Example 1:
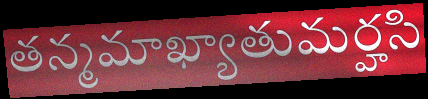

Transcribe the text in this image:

తన్మమాఖ్యాతుమర్హసి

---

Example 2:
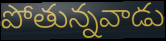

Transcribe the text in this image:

పోతున్నవాడు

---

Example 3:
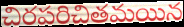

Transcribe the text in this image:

చిరపరిచితమయిన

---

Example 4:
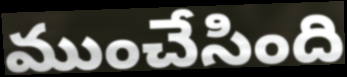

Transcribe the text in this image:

ముంచేసింది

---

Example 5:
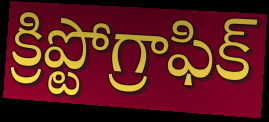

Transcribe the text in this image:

క్రిప్టోగ్రాఫిక్